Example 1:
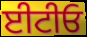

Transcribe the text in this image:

ਈਟੀਓ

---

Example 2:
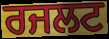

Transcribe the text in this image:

ਰਜਲਟ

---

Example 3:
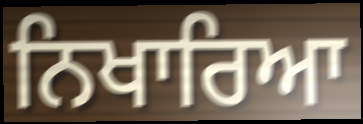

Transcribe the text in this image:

ਨਿਖਾਰਿਆ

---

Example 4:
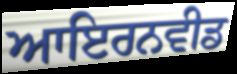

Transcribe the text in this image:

ਆਇਰਨਵੀਡ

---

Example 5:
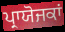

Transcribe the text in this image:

ਪ੍ਰਾਯੋਜਕਾਂ